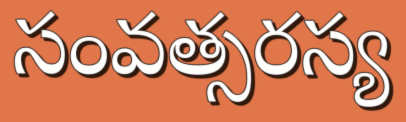
సంవత్సరస్య